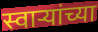
स्वाऱ्यांच्या